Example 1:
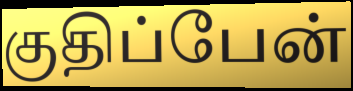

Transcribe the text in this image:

குதிப்பேன்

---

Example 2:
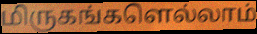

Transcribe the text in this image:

மிருகங்களெல்லாம்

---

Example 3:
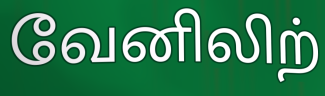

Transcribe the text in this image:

வேனிலிற்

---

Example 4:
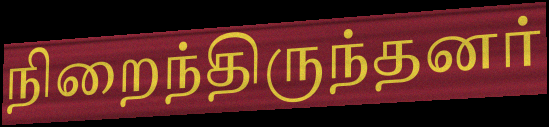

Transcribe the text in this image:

நிறைந்திருந்தனர்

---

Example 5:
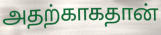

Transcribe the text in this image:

அதற்காகதான்